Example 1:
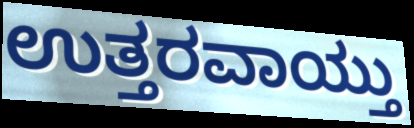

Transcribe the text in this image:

ಉತ್ತರವಾಯ್ತು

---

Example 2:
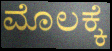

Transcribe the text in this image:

ಮೊಲಕ್ಕೆ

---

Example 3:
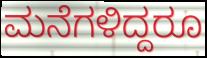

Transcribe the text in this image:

ಮನೆಗಳಿದ್ದರೂ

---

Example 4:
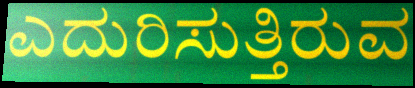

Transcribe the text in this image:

ಎದುರಿಸುತ್ತಿರುವ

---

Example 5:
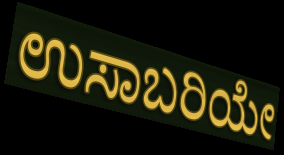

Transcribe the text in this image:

ಉಸಾಬರಿಯೇ